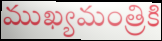
ముఖ్యమంత్రికి